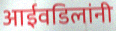
आईवडिलांनी